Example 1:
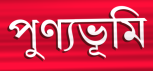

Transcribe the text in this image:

পুণ্যভূমি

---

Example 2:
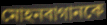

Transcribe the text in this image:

মোহনবাগানকে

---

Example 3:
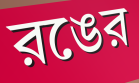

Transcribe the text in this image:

রঙের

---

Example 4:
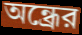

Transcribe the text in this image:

অন্ধ্রের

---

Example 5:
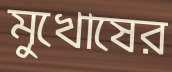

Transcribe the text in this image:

মুখোষের